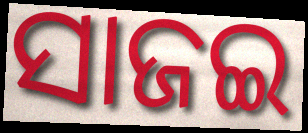
ସାଜଇ